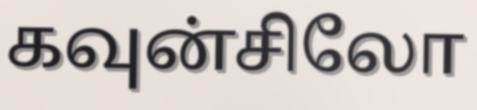
கவுன்சிலோ